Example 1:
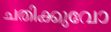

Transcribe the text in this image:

ചതിക്കുവോ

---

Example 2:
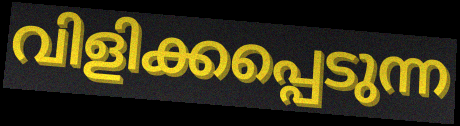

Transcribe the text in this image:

വിളിക്കപ്പെടുന്ന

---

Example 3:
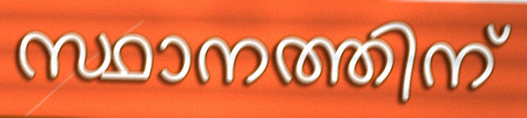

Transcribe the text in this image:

സ്ഥാനത്തിന്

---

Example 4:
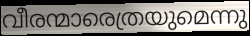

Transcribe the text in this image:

വീരന്മാരെത്രയുമെന്നു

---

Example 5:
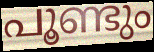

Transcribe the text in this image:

പൂണ്ടും